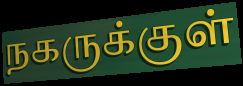
நகருக்குள்